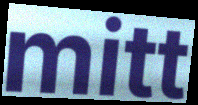
mitt